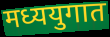
मध्ययुगात